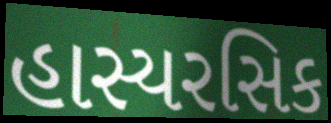
હાસ્યરસિક